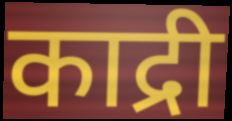
काद्री